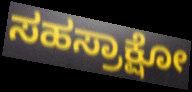
ಸಹಸ್ರಾಕ್ಷೋ